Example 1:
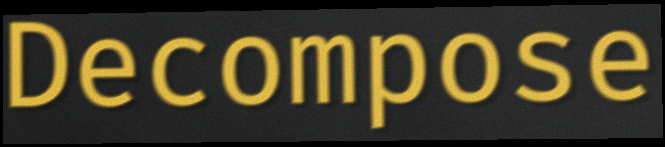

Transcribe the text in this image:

Decompose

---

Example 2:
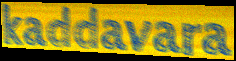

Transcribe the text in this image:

kaddavara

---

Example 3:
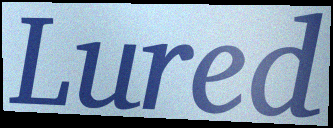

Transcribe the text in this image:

Lured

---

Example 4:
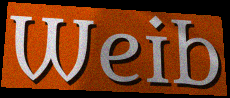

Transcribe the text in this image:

Weib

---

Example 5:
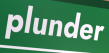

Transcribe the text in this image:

plunder